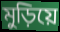
মুড়িয়ে